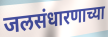
जलसंधारणाच्या